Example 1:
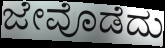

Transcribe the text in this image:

ಜೇವೊಡೆದು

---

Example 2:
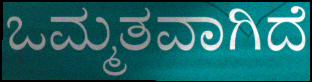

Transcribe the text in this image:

ಒಮ್ಮತವಾಗಿದೆ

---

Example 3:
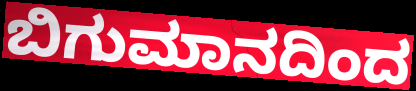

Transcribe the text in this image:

ಬಿಗುಮಾನದಿಂದ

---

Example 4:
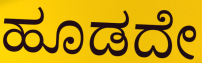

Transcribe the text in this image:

ಹೂಡದೇ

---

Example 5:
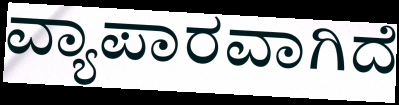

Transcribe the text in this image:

ವ್ಯಾಪಾರವಾಗಿದೆ